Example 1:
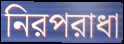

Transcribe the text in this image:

নিরপরাধা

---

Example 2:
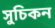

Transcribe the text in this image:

সুচিকন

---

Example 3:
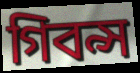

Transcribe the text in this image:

গিবন্স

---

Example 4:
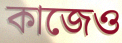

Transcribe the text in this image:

কাজেও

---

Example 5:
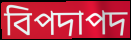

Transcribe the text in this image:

বিপদাপদ